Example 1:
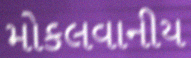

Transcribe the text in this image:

મોકલવાનીય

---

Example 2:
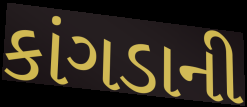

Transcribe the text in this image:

કાંગડાની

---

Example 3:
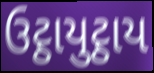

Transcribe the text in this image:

ઉટ્ઠાયુટ્ઠાય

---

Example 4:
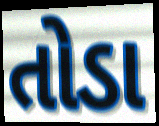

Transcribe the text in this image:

તોડા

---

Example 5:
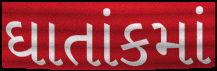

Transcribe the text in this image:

ઘાતાંકમાં